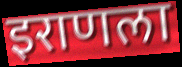
इराणला